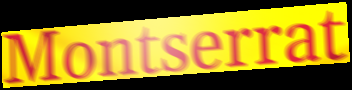
Montserrat